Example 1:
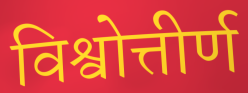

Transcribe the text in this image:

विश्वोत्तीर्ण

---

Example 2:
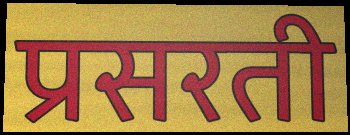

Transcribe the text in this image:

प्रसरती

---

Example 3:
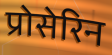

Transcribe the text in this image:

प्रोसेरिन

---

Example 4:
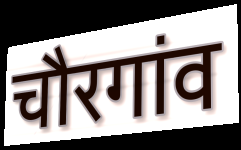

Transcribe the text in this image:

चौरगांव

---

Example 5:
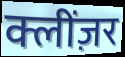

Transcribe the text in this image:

क्लींज़र